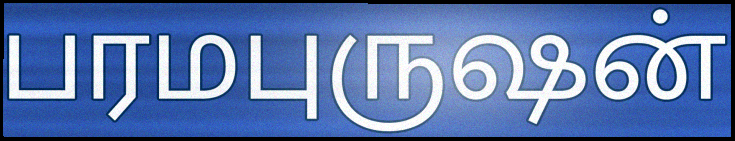
பரமபுருஷன்